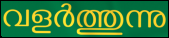
വളർത്തുന്നു